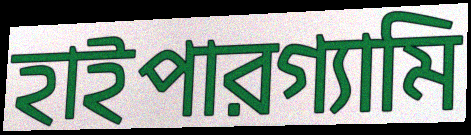
হাইপারগ্যামি